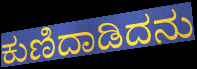
ಕುಣಿದಾಡಿದನು